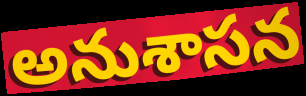
అనుశాసన